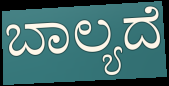
ಬಾಲ್ಯದೆ